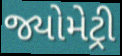
જ્યોમેટ્રી